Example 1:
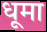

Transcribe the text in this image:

धूमा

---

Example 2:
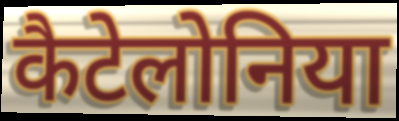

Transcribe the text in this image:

कैटेलोनिया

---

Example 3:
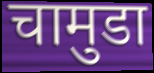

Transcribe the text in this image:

चामुडा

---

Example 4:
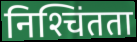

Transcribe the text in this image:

निश्चिंतता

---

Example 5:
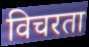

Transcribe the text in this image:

विचरता